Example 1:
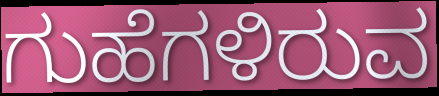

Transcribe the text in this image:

ಗುಹೆಗಳಿರುವ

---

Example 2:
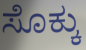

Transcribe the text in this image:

ಸೊಕ್ಕು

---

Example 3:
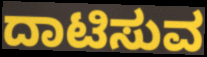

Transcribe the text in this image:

ದಾಟಿಸುವ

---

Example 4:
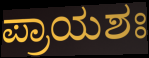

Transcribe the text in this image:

ಪ್ರಾಯಶಃ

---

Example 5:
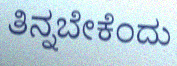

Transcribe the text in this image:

ತಿನ್ನಬೇಕೆಂದು